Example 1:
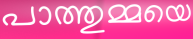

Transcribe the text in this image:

പാത്തുമ്മയെ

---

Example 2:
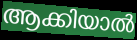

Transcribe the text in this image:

ആക്കിയാൽ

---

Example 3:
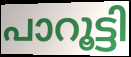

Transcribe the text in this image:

പാറൂട്ടി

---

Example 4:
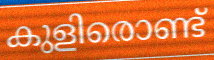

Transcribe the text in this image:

കുളിരൊണ്ട്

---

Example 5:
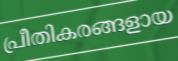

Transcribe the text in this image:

പ്രീതികരങ്ങളായ